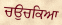
ਚਉਚਕਿਆ